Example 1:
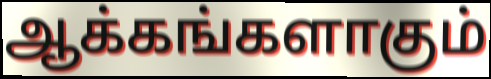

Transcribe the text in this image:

ஆக்கங்களாகும்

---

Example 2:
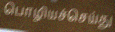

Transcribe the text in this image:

பொழியச்செய்து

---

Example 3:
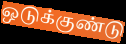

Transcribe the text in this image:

ஒடுக்குண்டு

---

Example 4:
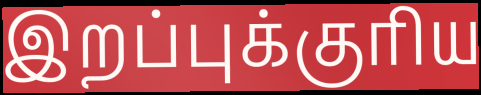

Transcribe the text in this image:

இறப்புக்குரிய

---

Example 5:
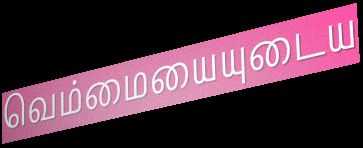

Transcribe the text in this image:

வெம்மையையுடைய